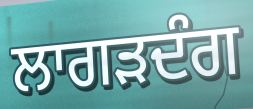
ਲਾਗੜਦੰਗ